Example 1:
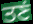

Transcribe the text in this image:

ਤਣਂ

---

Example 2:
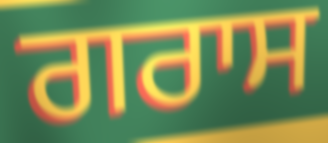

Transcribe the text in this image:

ਗਰਾਸ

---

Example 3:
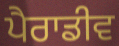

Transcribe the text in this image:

ਪੈਰਾਡੀਵ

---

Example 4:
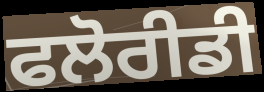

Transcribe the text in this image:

ਫਲੋਰੀਡੀ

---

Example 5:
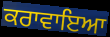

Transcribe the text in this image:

ਕਰਾਵਾਇਆ